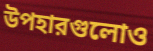
উপহারগুলোও